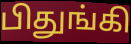
பிதுங்கி